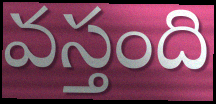
వస్తంది